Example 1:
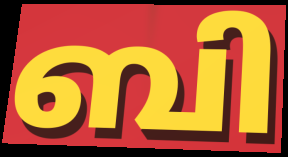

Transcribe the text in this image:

ബി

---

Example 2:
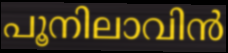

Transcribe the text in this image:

പൂനിലാവിൻ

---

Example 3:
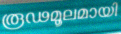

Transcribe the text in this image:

രൂഢമൂലമായി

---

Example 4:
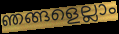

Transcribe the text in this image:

ഞങ്ങളെല്ലാം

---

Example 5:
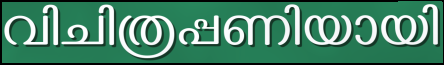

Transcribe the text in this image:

വിചിത്രപ്പണിയായി